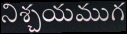
నిశ్చయముగ